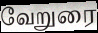
வேறுரை